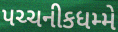
પચ્ચનીકધમ્મે